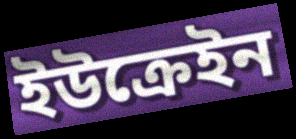
ইউক্ৰেইন